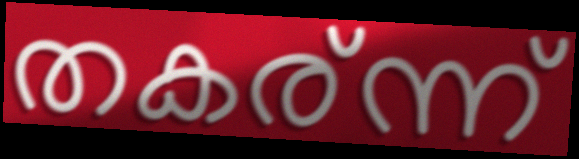
തകര്ന്ന്